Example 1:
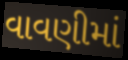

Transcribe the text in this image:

વાવણીમાં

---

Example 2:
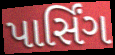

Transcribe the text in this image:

પાર્સિંગ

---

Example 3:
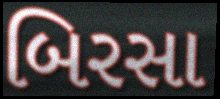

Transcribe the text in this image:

બિરસા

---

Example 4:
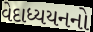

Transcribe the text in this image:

વેદાધ્યયનનો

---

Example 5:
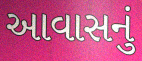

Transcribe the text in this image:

આવાસનું